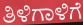
ತಿಳಿಗಾಳಿಗೆ